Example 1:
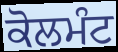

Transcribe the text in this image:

ਕੋਲਮੰਟ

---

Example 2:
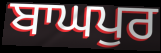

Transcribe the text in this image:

ਬਾਘਪੁਰ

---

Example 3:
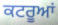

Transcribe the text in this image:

ਕਟਰੂਆਂ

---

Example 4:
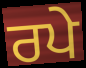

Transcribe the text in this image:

ਰਪੇ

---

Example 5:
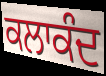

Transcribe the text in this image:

ਕਲਾਕੰਦ